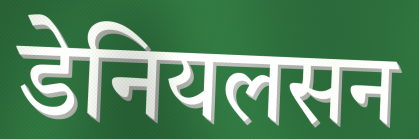
डेनियलसन